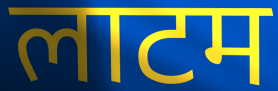
लाटम